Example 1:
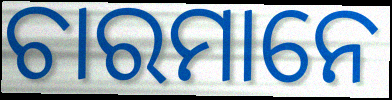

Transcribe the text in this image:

ଚାରମାନେ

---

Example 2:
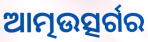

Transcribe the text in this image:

ଆତ୍ମଉତ୍ସର୍ଗର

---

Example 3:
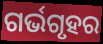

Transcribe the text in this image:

ଗର୍ଭଗୃହର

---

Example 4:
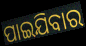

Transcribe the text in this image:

ପାଇଯିବାର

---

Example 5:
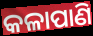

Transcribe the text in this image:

କଳାପାଣି